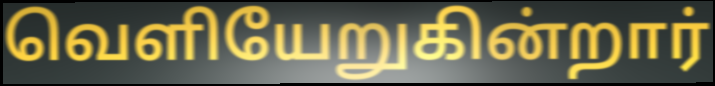
வெளியேறுகின்றார்